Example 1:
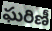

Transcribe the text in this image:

ఘరిణీ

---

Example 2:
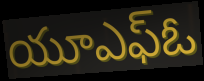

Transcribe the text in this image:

యూఎఫ్ఓ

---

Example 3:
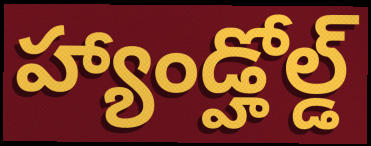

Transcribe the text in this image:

హ్యాండ్హోల్డ్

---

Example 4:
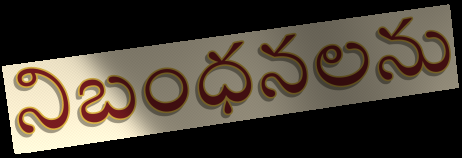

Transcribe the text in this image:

నిబంధనలను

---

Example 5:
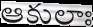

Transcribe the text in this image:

ఆకులాః